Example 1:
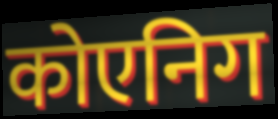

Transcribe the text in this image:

कोएनिग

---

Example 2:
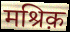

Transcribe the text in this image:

मश्रिक़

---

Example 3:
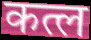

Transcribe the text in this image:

कत्‍ल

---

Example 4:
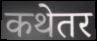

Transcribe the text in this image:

कथेतर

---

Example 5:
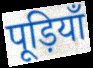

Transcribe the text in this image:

पूड़ियाँ